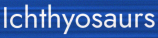
Ichthyosaurs